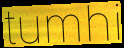
tumhi